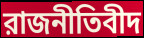
রাজনীতিবীদ